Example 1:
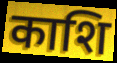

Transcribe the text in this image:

काशि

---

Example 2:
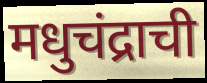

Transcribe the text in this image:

मधुचंद्राची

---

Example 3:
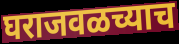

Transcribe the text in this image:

घराजवळच्याच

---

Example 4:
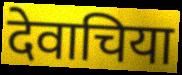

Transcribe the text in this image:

देवाचिया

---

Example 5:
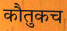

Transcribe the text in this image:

कौतुकच